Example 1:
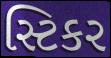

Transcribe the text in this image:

સ્ટિકર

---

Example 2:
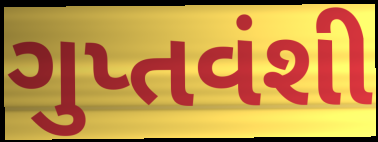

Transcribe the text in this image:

ગુપ્તવંશી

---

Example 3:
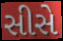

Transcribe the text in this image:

સીસે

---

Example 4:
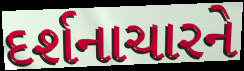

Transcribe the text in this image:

દર્શનાચારને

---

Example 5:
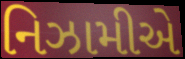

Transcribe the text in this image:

નિઝામીએ